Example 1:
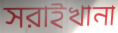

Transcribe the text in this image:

সরাইখানা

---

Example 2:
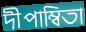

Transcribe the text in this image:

দীপাম্বিতা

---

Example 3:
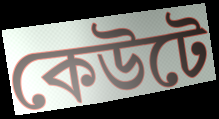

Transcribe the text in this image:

কেউটে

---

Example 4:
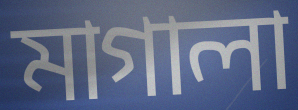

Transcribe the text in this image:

মাগালা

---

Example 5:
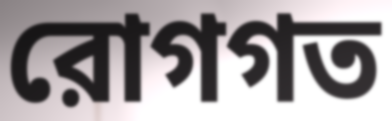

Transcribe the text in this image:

রোগগত